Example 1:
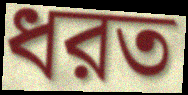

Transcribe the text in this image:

ধরত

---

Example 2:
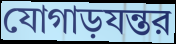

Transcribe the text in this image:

যোগাড়যন্তর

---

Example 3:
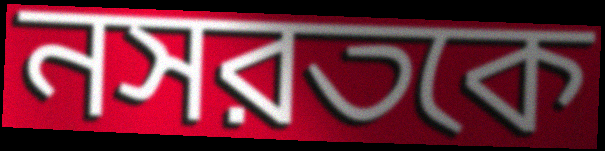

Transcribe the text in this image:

নসরতকে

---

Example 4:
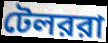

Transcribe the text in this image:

টেলররা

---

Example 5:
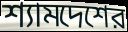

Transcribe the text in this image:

শ্যামদেশের